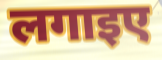
लगाइए